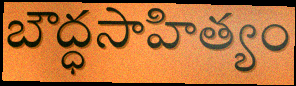
బౌద్ధసాహిత్యం